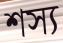
শস্য